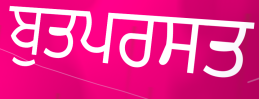
ਬੁਤਪਰਸਤ